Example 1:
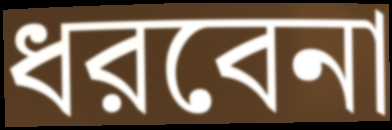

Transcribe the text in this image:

ধরবেনা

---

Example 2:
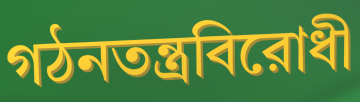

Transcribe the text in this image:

গঠনতন্ত্রবিরোধী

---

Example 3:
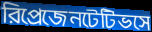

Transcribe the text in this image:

রিপ্রেজেনটেটিভসে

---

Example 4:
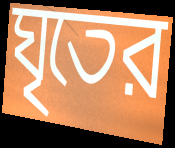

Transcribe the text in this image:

ঘৃতের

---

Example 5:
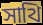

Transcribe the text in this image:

সাথি